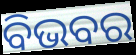
ବିଭବର